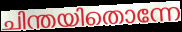
ചിന്തയിതൊന്നേ